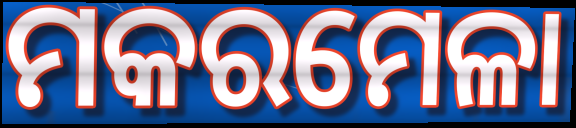
ମକରମେଳା